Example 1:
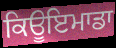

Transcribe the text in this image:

ਕਿਊਇਮਾਡਾ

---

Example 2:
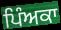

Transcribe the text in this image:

ਪਿੰਅਕਾ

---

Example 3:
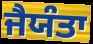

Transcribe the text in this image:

ਜੈਯੰਤਾ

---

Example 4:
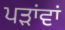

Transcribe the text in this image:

ਪੜਾਂਵਾਂ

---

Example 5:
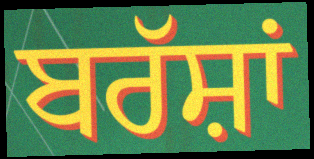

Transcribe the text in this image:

ਬਰੱਸ਼ਾਂ